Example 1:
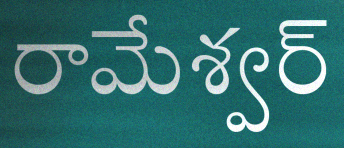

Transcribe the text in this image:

రామేశ్వర్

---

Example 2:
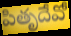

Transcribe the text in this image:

పితృదేవో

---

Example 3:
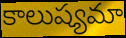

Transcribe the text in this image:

కాలుష్యమా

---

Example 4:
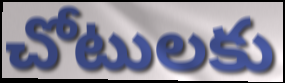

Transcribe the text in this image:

చోటులకు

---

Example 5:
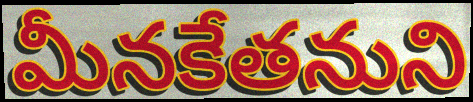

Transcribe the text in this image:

మీనకేతనుని